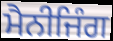
ਮੈਨੀਜਿੰਗ